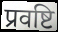
प्रवष्टि